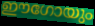
ഈഗോയും